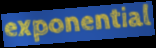
exponential